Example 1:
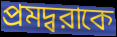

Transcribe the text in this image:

প্রমদ্বরাকে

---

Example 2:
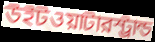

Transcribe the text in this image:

উইটওয়াটারস্ট্রান্ড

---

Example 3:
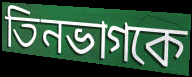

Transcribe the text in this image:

তিনভাগকে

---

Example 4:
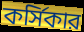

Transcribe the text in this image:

কর্সিকার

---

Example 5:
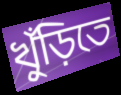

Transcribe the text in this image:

খুঁড়িতে